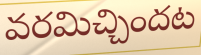
వరమిచ్చిందట